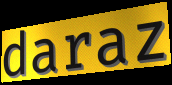
daraz